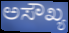
ಅಸೌಖ್ಯ